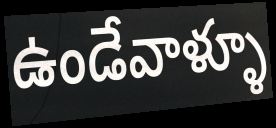
ఉండేవాళ్ళూ